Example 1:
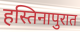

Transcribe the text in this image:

हस्तिनापुरात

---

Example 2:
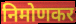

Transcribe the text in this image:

निमोणकर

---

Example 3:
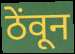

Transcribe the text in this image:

ठेंवून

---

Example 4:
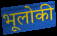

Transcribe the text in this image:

भूलोकी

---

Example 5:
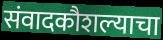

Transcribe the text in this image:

संवादकौशल्याचा